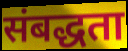
संबद्धता